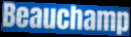
Beauchamp